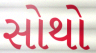
સોથો